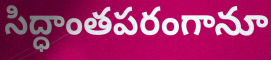
సిద్ధాంతపరంగానూ